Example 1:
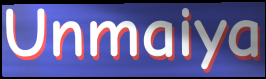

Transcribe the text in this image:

Unmaiya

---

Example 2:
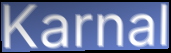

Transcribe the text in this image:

Karnal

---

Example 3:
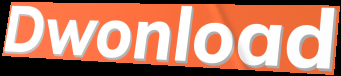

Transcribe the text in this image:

Dwonload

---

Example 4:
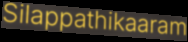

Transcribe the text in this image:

Silappathikaaram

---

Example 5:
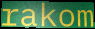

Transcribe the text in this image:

rakom